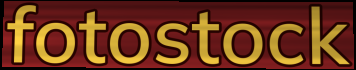
fotostock